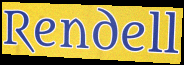
Rendell